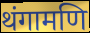
थंगामणि